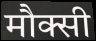
मौक्सी